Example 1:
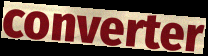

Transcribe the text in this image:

converter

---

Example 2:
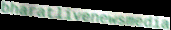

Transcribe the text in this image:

bharatlivenewsmedia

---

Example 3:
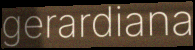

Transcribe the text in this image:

gerardiana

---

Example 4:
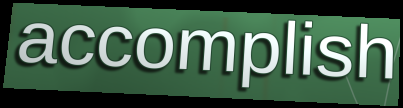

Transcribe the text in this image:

accomplish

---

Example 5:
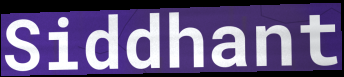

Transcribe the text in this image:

Siddhant